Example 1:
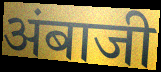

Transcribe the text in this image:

अंबाजी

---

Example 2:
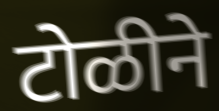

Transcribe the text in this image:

टोळीने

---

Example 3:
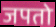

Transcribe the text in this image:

जपतो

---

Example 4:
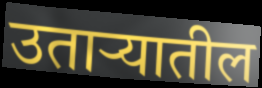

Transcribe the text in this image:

उताऱ्यातील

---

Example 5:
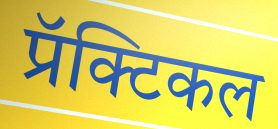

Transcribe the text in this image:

प्रॅक्टिकल